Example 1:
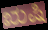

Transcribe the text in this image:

ಋಷಿ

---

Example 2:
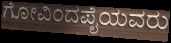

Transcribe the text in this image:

ಗೋವಿಂದಪೈಯವರು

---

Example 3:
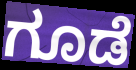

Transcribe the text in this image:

ಗೂಡೆ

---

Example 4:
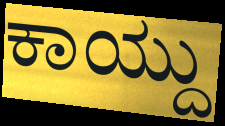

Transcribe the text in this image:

ಕಾಯ್ದು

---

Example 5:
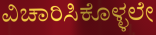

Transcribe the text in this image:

ವಿಚಾರಿಸಿಕೊಳ್ಳಲೇ